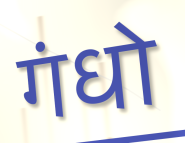
गंधो